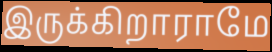
இருக்கிறாராமே